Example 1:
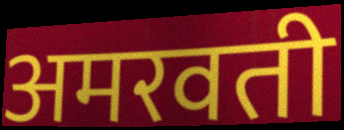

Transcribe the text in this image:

अमरवती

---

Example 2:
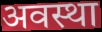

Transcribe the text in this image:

अवस्‍था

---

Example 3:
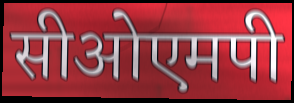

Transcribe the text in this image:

सीओएमपी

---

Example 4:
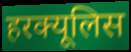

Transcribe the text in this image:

हरक्यूलिस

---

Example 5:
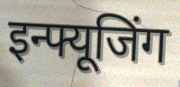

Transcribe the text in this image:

इन्फ्यूजिंग